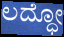
ಲದ್ಧೋ